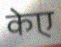
केए